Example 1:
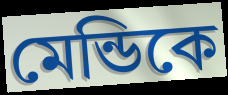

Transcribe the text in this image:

মেন্ডিকে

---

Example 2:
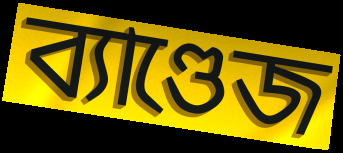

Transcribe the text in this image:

ব্যাণ্ডেজ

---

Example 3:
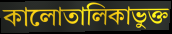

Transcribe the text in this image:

কালোতালিকাভুক্ত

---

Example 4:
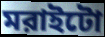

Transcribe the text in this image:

মরাইটো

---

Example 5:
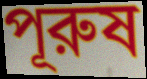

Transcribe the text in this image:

পূরুষ